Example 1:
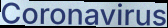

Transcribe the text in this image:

Coronavirus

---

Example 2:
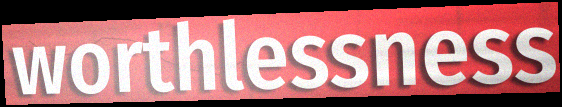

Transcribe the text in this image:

worthlessness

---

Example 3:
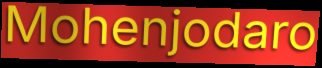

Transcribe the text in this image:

Mohenjodaro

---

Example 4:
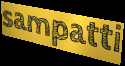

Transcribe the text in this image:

sampatti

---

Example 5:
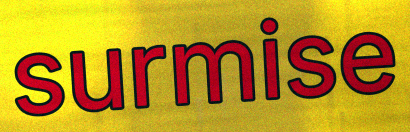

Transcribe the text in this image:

surmise